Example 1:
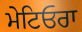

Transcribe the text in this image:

ਮੇਟਿਓਰਾ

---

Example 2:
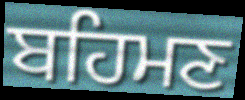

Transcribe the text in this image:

ਬਹਿਮਣ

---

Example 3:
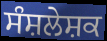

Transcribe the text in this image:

ਸੰਸ਼ਲੇਸ਼ਕ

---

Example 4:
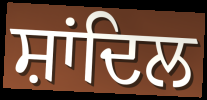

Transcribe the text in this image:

ਸ਼ਾਂਦਿਲ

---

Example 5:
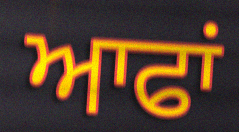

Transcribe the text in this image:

ਆਫਾਂ